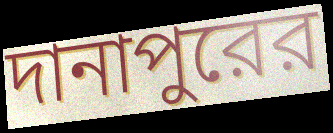
দানাপুরের